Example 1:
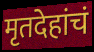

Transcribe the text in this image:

मृतदेहांचं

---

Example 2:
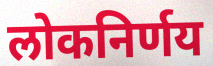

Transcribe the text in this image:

लोकनिर्णय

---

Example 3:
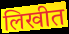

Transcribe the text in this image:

लिखीत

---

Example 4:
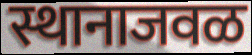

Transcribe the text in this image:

स्थानाजवळ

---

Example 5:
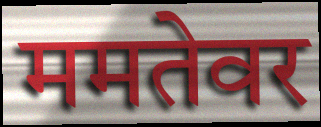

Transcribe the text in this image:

ममतेवर